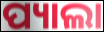
ପ୍ୟାଲା